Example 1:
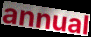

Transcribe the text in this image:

annual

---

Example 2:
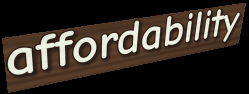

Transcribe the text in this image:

affordability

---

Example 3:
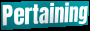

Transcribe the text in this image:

Pertaining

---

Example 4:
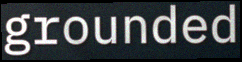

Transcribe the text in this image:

grounded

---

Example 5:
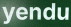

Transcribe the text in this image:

yendu